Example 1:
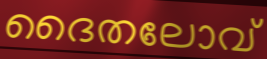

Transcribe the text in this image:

ദൈതലോവ്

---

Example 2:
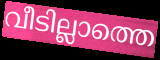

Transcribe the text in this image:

വീടില്ലാത്തെ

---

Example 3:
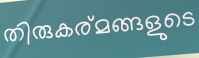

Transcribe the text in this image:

തിരുകര്മങ്ങളുടെ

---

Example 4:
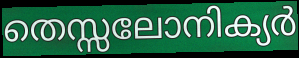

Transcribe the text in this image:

തെസ്സലോനിക്യർ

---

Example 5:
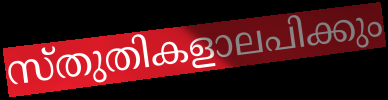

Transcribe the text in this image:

സ്തുതികളാലപിക്കും